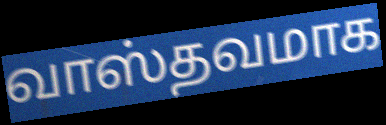
வாஸ்தவமாக